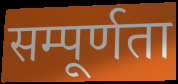
सम्पूर्णता